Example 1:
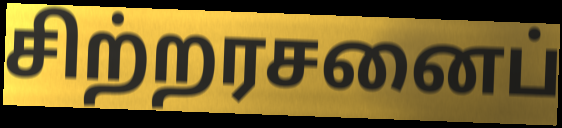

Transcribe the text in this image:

சிற்றரசனைப்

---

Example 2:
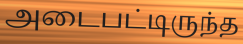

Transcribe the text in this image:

அடைபட்டிருந்த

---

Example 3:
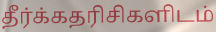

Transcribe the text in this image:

தீர்க்கதரிசிகளிடம்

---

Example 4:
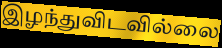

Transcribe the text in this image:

இழந்துவிடவில்லை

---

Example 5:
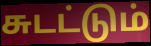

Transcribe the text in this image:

சுடட்டும்